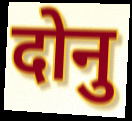
दोनु